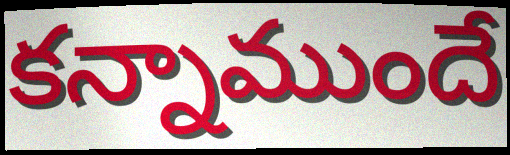
కన్నాముందే